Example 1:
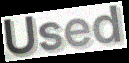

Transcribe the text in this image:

Used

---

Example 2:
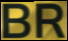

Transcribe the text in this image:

BR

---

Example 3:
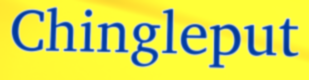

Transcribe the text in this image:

Chingleput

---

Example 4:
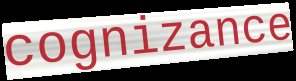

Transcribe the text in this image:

cognizance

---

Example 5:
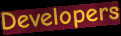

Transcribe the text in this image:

Developers